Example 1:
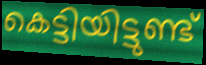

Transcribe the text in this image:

കെട്ടിയിട്ടുണ്ട്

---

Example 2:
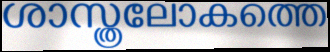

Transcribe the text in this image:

ശാസ്ത്രലോകത്തെ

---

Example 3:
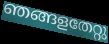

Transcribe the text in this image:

ഞങ്ങളതേറ്റു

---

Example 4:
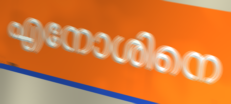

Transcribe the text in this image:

എനോശിനെ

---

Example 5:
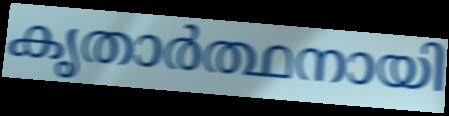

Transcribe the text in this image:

കൃതാർത്ഥനായി